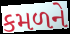
કમળને